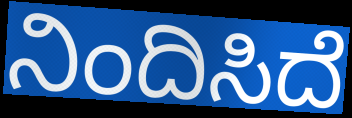
ನಿಂದಿಸಿದೆ